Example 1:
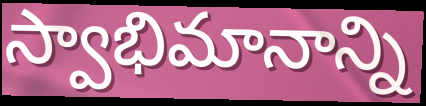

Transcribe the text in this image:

స్వాభిమానాన్ని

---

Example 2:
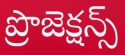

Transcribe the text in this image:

ప్రొజెక్షన్స్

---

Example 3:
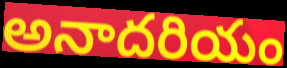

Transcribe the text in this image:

అనాదరియం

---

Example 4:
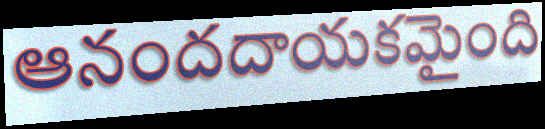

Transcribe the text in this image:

ఆనందదాయకమైంది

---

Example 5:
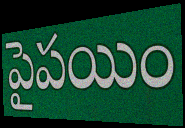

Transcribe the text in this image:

పైపయిం